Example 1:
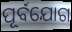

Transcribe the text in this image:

ପୂର୍ବଯୋଗ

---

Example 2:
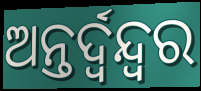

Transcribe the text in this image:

ଅନ୍ତର୍ଦ୍ୱନ୍ଦ୍ୱର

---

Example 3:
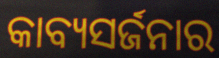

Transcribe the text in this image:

କାବ୍ୟସର୍ଜନାର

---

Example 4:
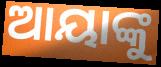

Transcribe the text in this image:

ଆୟାଙ୍କୁ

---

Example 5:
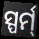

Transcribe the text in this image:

ସ୍ପର୍ମ୍